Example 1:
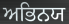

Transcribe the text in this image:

ਅਭਿਨਯ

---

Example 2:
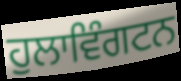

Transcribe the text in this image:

ਹੁਲਾਵਿੰਗਟਨ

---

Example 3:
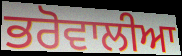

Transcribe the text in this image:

ਭਰੋਵਾਲੀਆ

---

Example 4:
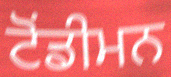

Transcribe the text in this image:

ਟੋਂਡੀਮਨ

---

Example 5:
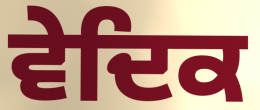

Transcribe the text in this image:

ਵੇਦਿਕ